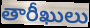
తారీఖులు